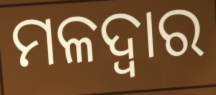
ମଳଦ୍ଵାର